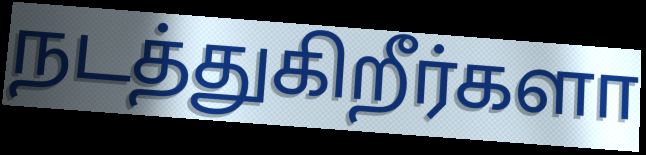
நடத்துகிறீர்களா